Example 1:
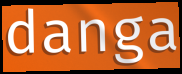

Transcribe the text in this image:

danga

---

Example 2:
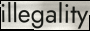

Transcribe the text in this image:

illegality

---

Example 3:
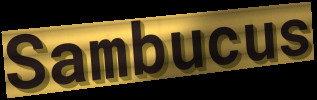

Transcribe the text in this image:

Sambucus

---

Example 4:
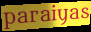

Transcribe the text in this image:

paraiyas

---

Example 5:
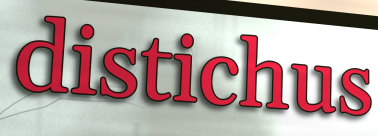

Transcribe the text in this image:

distichus